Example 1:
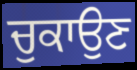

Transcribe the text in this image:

ਚੁਕਾਉਣ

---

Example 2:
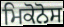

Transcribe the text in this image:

ਮਿਕੋਨੋਸ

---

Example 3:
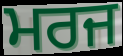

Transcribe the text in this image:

ਮਰਜ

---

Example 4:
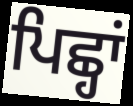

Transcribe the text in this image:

ਪਿਛ੍ਹਾਂ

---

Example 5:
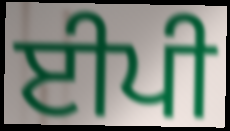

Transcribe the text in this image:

ਈਪੀ